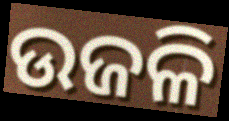
ଉଜଳି